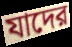
যাদের